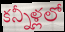
కన్నీళ్లలో